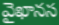
వైఖానస